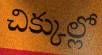
చిక్కుల్లో